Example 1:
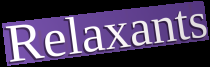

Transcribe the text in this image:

Relaxants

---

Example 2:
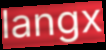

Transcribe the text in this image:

langx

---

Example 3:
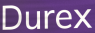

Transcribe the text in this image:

Durex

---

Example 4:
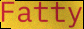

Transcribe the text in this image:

Fatty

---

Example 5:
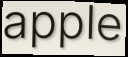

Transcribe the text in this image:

apple